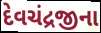
દેવચંદ્રજીના